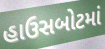
હાઉસબોટમાં